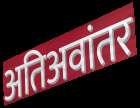
अतिअवांतर